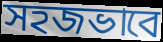
সহজভাবে